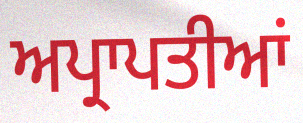
ਅਪ੍ਰਾਪਤੀਆਂ